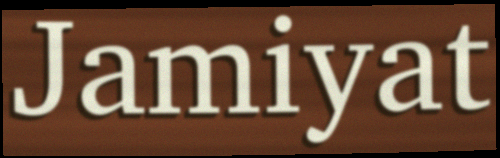
Jamiyat